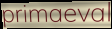
primaeval